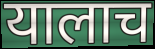
यालाच